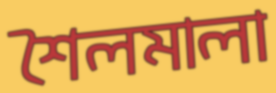
শৈলমালা